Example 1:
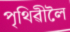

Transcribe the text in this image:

পৃথিৱীলৈ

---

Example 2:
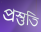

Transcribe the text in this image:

প্ৰস্তুতি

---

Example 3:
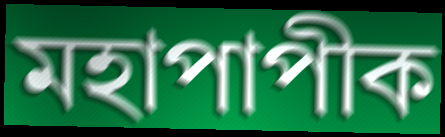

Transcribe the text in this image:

মহাপাপীক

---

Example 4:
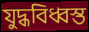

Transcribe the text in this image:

যুদ্ধবিধ্বস্ত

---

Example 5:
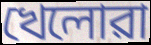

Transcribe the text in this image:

খেলোৱা